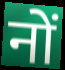
नों